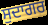
ਸੁਦਾਗਰ